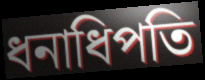
ধনাধিপতি